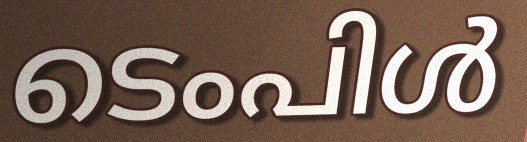
ടെംപിൾ